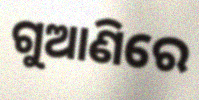
ଗୁଆଣିରେ